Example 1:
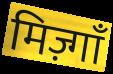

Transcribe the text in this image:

मिज़्गाँ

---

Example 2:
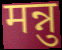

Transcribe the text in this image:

मन्नु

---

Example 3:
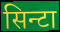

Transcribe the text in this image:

सिन्टा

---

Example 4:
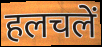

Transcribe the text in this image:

हलचलें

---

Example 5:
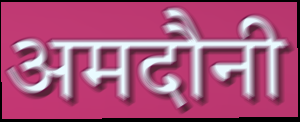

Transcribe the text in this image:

अमदौनी